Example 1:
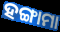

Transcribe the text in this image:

ହଙ୍ଗାମା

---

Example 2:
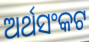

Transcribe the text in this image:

ଅର୍ଥସଂକଟ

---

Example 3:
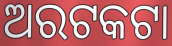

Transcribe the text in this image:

ଅରଟକଟା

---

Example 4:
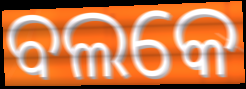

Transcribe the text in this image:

ବଲକେ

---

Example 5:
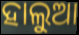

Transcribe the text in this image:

ହାଲୁଆ